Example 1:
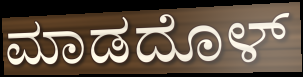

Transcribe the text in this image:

ಮಾಡದೊಳ್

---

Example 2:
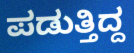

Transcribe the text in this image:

ಪಡುತ್ತಿದ್ದ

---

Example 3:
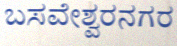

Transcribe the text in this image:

ಬಸವೇಶ್ವರನಗರ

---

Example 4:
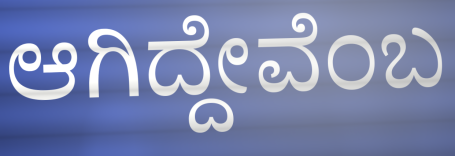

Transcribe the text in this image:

ಆಗಿದ್ದೇವೆಂಬ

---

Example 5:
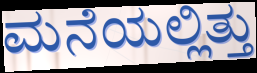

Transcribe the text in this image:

ಮನೆಯಲ್ಲಿತ್ತು